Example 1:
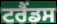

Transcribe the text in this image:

ਟਰੈਂਡਸ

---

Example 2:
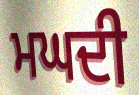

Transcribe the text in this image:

ਮਘਦੀ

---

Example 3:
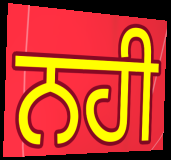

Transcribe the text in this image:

ਨਹੀ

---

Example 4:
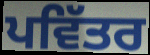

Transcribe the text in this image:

ਪਵਿੱਤਰ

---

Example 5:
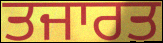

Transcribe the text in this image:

ਤਜਾਰਤ